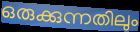
ഒരുക്കുന്നതിലും